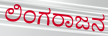
ಲಿಂಗರಾಜನ